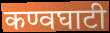
कण्वघाटी